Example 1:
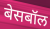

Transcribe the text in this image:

बेसबॉल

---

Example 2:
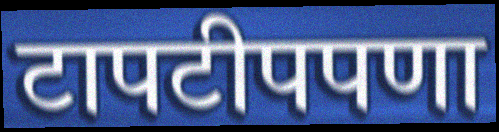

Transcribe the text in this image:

टापटीपपणा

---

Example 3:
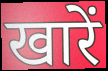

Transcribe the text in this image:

खारें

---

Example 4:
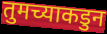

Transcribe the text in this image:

तुमच्याकडुन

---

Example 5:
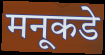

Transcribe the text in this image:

मनूकडे